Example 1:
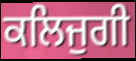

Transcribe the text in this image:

ਕਲਿਜੁਗੀ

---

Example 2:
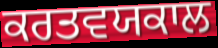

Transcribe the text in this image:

ਕਰਤਵਯਕਾਲ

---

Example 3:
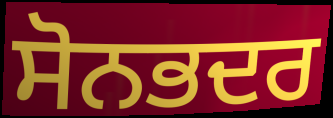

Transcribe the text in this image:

ਸੋਨਭਦਰ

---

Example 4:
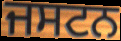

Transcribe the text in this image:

ਜਸਟਨ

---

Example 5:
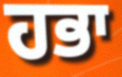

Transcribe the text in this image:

ਹਭਾ